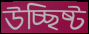
উচ্ছিষ্ট